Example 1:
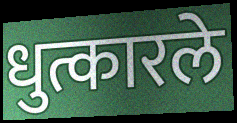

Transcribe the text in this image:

धुत्कारले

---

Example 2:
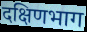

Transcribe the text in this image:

दक्षिणभाग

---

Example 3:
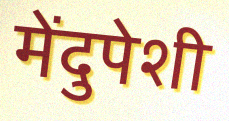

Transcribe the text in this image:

मेंदुपेशी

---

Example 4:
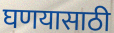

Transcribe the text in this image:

घणयासाठी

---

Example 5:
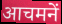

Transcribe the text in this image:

आचमनें